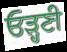
ਓੜ੍ਹਣੀ